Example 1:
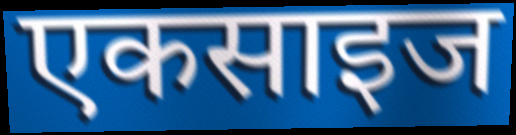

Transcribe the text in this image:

एकसाइज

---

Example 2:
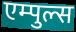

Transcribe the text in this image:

एम्पुल्स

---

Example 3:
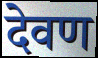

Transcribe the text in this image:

देवण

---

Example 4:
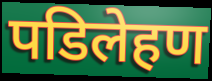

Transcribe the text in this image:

पडिलेहण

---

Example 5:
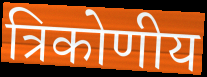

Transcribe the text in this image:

त्रिकोणीय